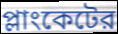
প্লাংকেটের